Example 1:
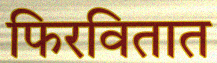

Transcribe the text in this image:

फिरवितात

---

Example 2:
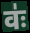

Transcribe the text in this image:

वः॑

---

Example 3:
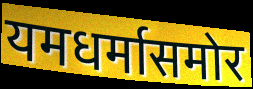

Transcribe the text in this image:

यमधर्मासमोर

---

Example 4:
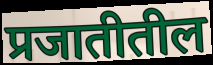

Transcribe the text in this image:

प्रजातीतील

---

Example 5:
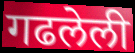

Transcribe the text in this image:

गढलेली